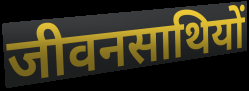
जीवनसाथियों